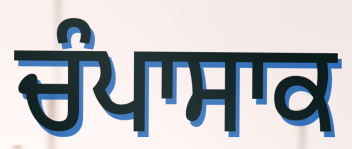
ਚੰਪਾਸਾਕ